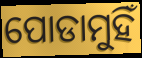
ପୋଡାମୁହିଁ